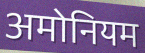
अमोनियम